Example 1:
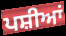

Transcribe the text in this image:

ਪਸ਼ੀਆਂ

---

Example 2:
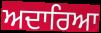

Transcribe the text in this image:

ਅਦਾਰਿਆ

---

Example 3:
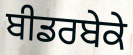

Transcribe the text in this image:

ਬੀਡਰਬੇਕੇ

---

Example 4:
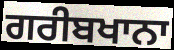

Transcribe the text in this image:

ਗਰੀਬਖਾਨਾ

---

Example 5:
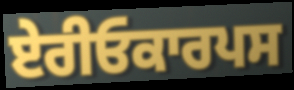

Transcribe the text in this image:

ਏਰੀਓਕਾਰਪਸ